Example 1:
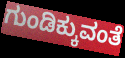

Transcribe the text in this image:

ಗುಂಡಿಕ್ಕುವಂತೆ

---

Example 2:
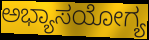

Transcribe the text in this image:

ಅಭ್ಯಾಸಯೋಗ್ಯ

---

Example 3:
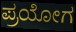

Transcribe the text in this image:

ಪ್ರಯೋಗ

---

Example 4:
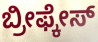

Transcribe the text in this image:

ಬ್ರೀಫ್ಕೇಸ್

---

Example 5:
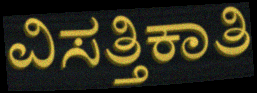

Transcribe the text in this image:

ವಿಸತ್ತಿಕಾತಿ